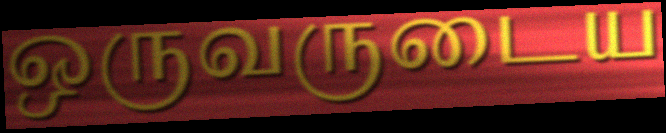
ஒருவருடைய